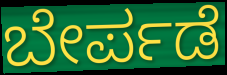
ಬೇರ್ಪಡೆ